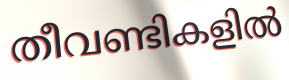
തീവണ്ടികളിൽ